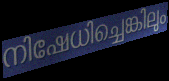
നിഷേധിച്ചെങ്കിലും